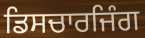
ਡਿਸਚਾਰਜਿੰਗ